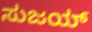
ಸುಜಯ್